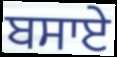
ਬਸਾਏ